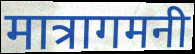
मात्रागमनी